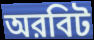
অরবিট